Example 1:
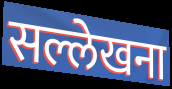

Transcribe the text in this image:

सल्लेखना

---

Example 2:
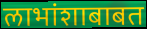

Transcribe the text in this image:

लाभांशाबाबत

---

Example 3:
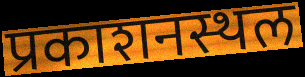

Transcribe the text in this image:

प्रकाशनस्थल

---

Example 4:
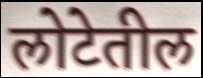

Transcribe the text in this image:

लोटेतील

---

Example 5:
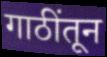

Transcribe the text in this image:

गाठींतून